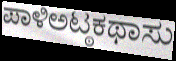
ಪಾಳಿಅಟ್ಠಕಥಾಸು